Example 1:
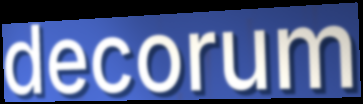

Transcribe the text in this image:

decorum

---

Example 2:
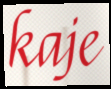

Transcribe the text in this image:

kaje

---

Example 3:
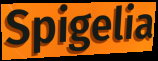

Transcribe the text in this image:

Spigelia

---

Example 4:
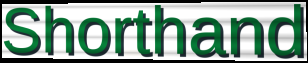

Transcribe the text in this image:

Shorthand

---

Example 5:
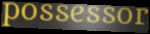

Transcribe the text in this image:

possessor